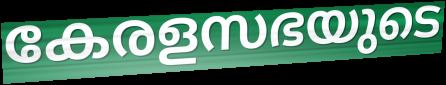
കേരളസഭയുടെ